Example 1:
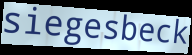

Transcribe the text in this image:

siegesbeck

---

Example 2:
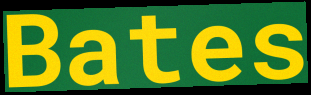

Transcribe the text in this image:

Bates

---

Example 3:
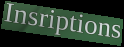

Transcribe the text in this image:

Insriptions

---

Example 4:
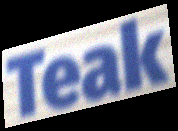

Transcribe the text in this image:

Teak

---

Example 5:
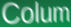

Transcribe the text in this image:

Colum